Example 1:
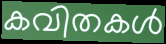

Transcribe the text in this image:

കവിതകൾ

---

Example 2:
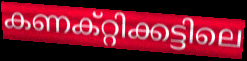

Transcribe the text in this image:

കണക്റ്റിക്കട്ടിലെ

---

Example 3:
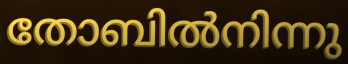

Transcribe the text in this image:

തോബിൽനിന്നു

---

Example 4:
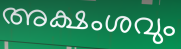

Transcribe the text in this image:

അക്ഷംശവും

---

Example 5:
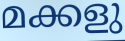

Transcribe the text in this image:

മക്കളു